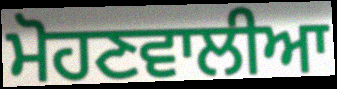
ਮੋਹਣਵਾਲੀਆ